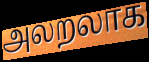
அலறலாக